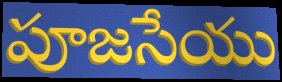
పూజసేయు